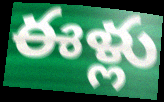
ఈళ్లు